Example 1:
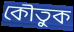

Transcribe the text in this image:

কৌতুক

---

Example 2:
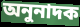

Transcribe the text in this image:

অনুনাদক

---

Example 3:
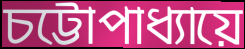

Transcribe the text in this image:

চট্টোপাধ্যায়ে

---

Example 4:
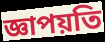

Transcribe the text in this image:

জ্ঞাপয়তি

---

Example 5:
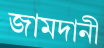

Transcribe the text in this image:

জামদানী